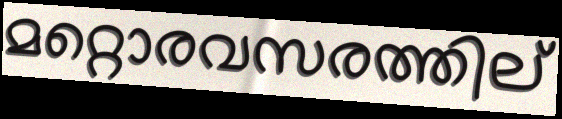
മറ്റൊരവസരത്തില്